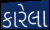
કારેલા